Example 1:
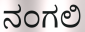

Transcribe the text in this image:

ನಂಗಲಿ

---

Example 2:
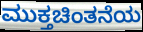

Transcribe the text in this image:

ಮುಕ್ತಚಿಂತನೆಯ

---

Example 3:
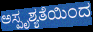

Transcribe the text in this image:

ಅಸ್ಪೃಶ್ಯತೆಯಿಂದ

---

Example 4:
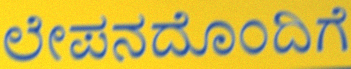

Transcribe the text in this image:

ಲೇಪನದೊಂದಿಗೆ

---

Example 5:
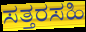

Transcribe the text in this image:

ಸತ್ತರಸಹಿ